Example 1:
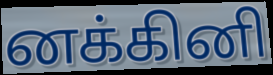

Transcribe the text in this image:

னக்கினி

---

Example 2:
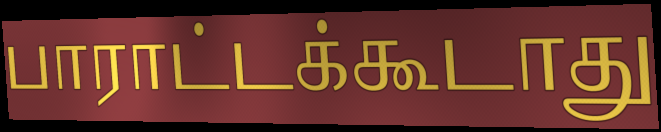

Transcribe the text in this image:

பாராட்டக்கூடாது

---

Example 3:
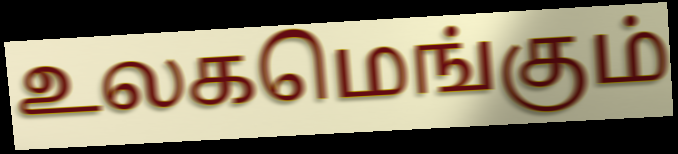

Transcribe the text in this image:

உலகமெங்கும்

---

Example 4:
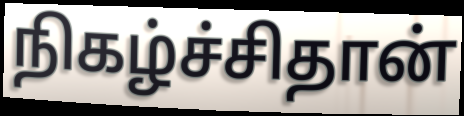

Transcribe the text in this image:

நிகழ்ச்சிதான்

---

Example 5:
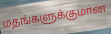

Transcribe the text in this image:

மதங்களுக்குமான